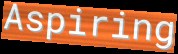
Aspiring